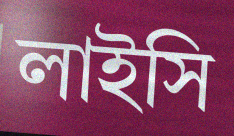
লাইসি